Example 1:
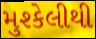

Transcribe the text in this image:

મુશ્કેલીથી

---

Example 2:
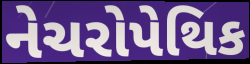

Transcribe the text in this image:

નેચરોપેથિક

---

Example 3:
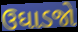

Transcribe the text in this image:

ઉઘાડજો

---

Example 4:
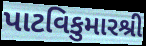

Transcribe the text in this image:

પાટવિકુમારશ્રી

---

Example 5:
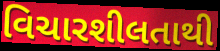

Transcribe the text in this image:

વિચારશીલતાથી